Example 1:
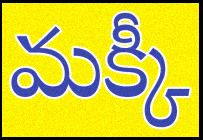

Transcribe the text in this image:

మక్కీ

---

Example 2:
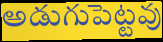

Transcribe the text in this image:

అడుగుపెట్టవు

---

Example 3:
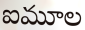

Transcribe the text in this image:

ఐమూల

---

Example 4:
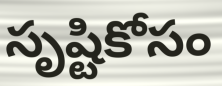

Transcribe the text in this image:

సృష్టికోసం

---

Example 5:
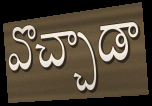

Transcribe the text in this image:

వొచ్చాడా